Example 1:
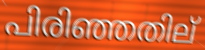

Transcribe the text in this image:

പിരിഞ്ഞതില്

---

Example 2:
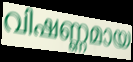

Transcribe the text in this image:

വിഷണ്ണമായ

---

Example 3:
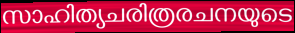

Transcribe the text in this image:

സാഹിത്യചരിത്രരചനയുടെ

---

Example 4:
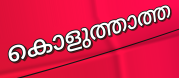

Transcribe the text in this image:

കൊളുത്താത്ത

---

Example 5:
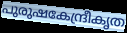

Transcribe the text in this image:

പുരുഷകേന്ദ്രീകൃത